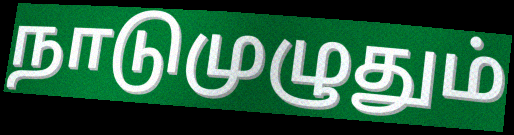
நாடுமுழுதும்